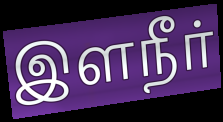
இளநீர்